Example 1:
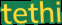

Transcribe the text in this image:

tethi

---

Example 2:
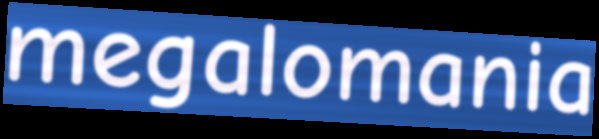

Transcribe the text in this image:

megalomania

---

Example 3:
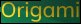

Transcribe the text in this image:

Origami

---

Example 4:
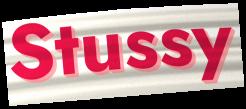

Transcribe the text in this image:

Stussy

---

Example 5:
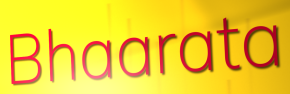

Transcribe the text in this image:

Bhaarata